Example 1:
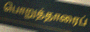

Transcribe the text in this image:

பொறுத்தாரைப்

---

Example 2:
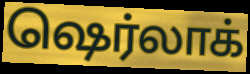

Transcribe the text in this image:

ஷெர்லாக்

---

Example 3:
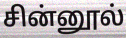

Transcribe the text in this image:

சின்னூல்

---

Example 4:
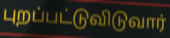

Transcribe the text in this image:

புறப்பட்டுவிடுவார்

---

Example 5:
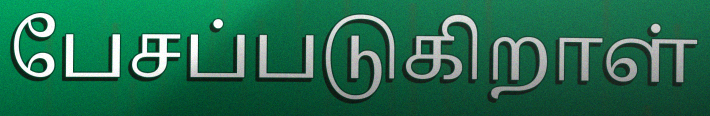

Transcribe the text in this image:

பேசப்படுகிறாள்